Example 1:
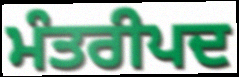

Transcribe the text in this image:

ਮੰਤਰੀਪਦ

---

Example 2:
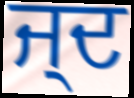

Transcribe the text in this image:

ਜ੍ਦ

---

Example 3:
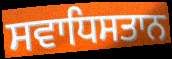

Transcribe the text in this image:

ਸਵਾਧਿਸਤਾਨ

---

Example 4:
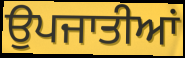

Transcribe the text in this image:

ਉਪਜਾਤੀਆਂ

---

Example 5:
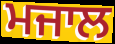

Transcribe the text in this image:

ਮਜਾਲ